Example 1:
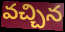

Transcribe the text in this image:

వచ్చిన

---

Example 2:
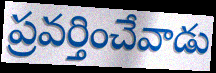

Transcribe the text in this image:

ప్రవర్తించేవాడు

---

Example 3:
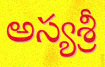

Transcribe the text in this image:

అస్యశ్రీ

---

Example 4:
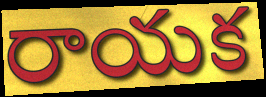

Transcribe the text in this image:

రాయక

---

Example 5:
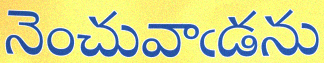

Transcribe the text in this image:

నెంచువాఁడను